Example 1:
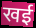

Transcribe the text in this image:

खई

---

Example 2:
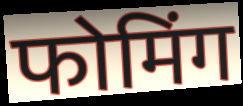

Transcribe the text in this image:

फोमिंग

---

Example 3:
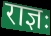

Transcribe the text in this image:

राज्ञः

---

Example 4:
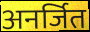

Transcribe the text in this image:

अनर्जित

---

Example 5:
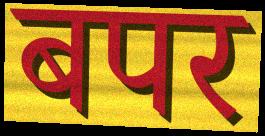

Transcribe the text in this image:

बपर